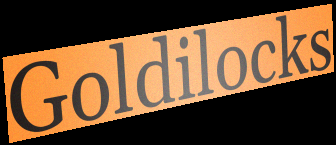
Goldilocks